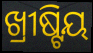
ଖ୍ରୀଷ୍ଟିୟ